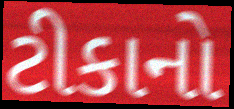
ટીકાનો